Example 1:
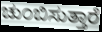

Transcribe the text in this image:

ಚುಂಬಿಸುತ್ತಾರೆ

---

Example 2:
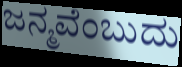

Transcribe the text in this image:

ಜನ್ಮವೆಂಬುದು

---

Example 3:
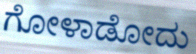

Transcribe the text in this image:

ಗೋಳಾಡೋದು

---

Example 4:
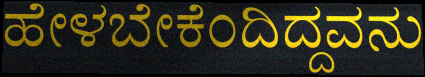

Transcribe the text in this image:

ಹೇಳಬೇಕೆಂದಿದ್ದವನು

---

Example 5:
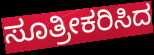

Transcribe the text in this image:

ಸೂತ್ರೀಕರಿಸಿದ